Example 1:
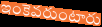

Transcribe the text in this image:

ఇంకెవరుంటారు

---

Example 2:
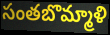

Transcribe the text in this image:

సంతబొమ్మాళి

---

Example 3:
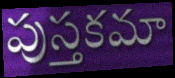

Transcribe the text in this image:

పుస్తకమా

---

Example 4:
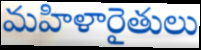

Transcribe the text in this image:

మహిళారైతులు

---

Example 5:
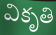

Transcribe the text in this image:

వికృతి